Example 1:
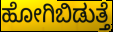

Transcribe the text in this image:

ಹೋಗಿಬಿಡುತ್ತೆ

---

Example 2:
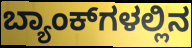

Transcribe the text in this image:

ಬ್ಯಾಂಕ್‌ಗಳಲ್ಲಿನ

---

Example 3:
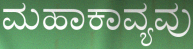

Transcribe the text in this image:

ಮಹಾಕಾವ್ಯವು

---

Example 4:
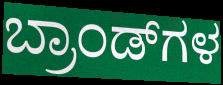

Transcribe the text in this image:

ಬ್ರಾಂಡ್‌ಗಳ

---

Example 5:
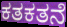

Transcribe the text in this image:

ಕತಕತನೆ